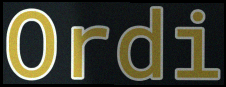
Ordi